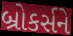
બ્રોકર્સને